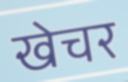
खेचर